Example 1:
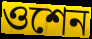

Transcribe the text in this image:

ওশেন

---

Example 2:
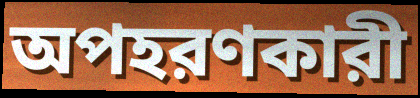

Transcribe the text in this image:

অপহরণকারী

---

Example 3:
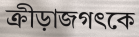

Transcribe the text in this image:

ক্রীড়াজগৎকে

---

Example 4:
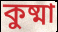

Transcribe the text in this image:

কুষ্মা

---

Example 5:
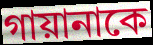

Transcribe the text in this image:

গায়ানাকে